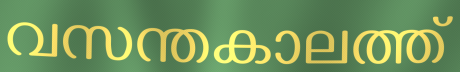
വസന്തകാലത്ത്